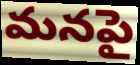
మనపై